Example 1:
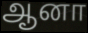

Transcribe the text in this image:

ஆனா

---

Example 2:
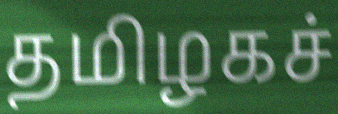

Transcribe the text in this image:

தமிழகச்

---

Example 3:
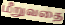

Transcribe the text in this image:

மீறுவதை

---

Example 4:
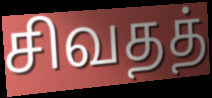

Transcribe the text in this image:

சிவதத்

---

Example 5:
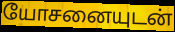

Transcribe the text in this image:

யோசனையுடன்